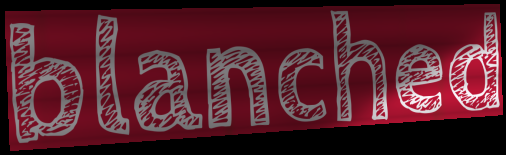
blanched